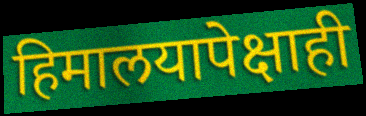
हिमालयापेक्षाही